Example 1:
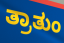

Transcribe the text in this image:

ತ್ರಾತುಂ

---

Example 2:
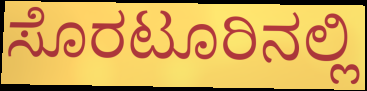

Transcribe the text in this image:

ಸೊರಟೂರಿನಲ್ಲಿ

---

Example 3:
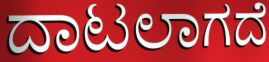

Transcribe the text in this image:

ದಾಟಲಾಗದೆ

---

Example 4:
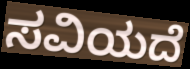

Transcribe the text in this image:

ಸವಿಯದೆ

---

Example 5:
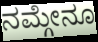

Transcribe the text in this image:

ನಮ್ಗೇನೂ